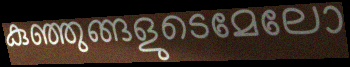
കുഞ്ഞുങ്ങളുടെമേലോ